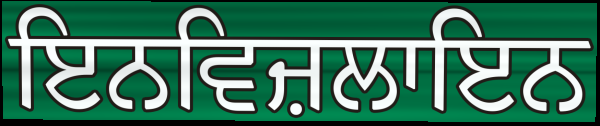
ਇਨਵਿਜ਼ਲਾਇਨ